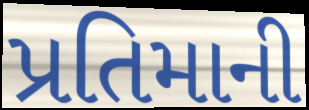
પ્રતિમાની